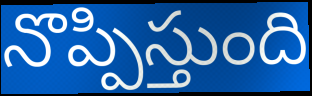
నొప్పిస్తుంది